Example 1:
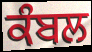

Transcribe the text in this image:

ਕੰਬਲ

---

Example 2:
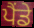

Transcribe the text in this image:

ਪੈਂਡੇ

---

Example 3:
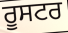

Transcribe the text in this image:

ਰੂਸਟਰ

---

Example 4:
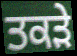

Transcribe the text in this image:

ਤਕੜੇ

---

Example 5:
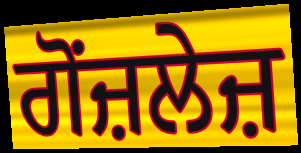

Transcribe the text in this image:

ਗੋਂਜ਼ਲੇਜ਼